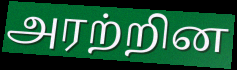
அரற்றின